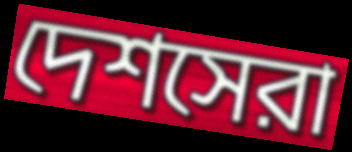
দেশসেরা